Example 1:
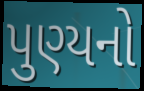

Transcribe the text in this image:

પુણ્યનો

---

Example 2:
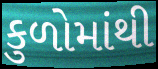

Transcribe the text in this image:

કુળોમાંથી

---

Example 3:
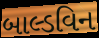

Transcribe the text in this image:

બાલ્ડવિન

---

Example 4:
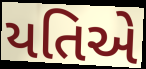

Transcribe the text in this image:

યતિએ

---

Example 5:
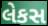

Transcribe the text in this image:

લેકસ